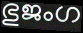
ഭുജംഗ